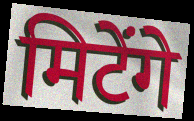
मिटेंगे